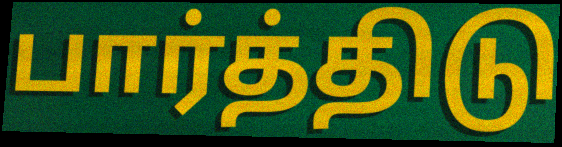
பார்த்திடு